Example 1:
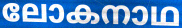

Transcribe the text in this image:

ലോകനാഥ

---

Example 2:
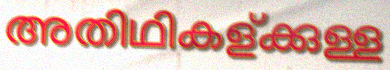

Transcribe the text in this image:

അതിഥികള്ക്കുള്ള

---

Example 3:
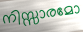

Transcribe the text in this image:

നിസ്സാരമോ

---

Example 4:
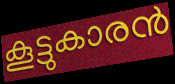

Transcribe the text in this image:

കൂട്ടുകാരൻ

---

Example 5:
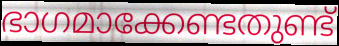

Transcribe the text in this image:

ഭാഗമാക്കേണ്ടതുണ്ട്